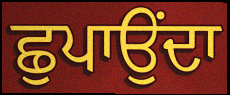
ਛੁਪਾਉਂਦਾ